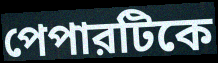
পেপারটিকে